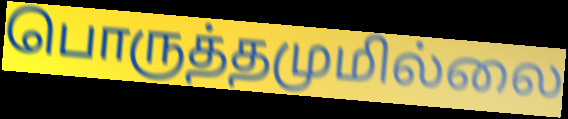
பொருத்தமுமில்லை